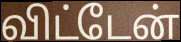
விட்டேன்